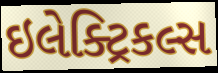
ઇલેક્ટ્રિકલ્સ